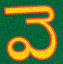
వె